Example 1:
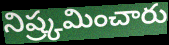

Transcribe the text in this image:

నిష్ర్కమించారు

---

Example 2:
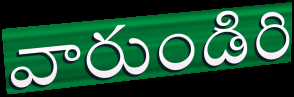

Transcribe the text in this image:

వారుండిరి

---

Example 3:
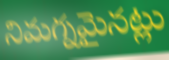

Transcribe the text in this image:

నిమగ్నమైనట్లు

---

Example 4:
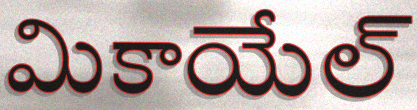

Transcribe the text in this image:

మికాయేల్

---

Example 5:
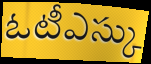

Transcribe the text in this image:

ఓటీఎస్కు